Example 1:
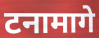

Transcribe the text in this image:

टनामागे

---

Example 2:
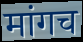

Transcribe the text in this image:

मांगच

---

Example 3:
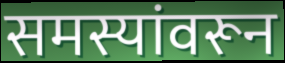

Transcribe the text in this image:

समस्यांवरून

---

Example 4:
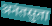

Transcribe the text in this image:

अनंतसुता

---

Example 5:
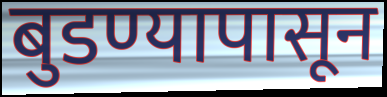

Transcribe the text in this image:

बुडण्यापासून